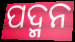
ପଦ୍ମନ